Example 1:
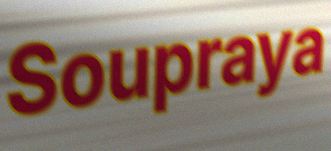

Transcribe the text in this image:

Soupraya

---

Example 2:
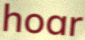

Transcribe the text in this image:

hoar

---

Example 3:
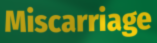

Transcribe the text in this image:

Miscarriage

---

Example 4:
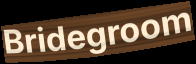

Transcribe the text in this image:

Bridegroom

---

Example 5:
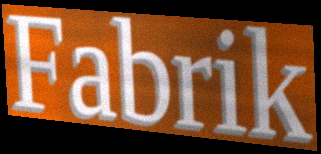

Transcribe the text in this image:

Fabrik